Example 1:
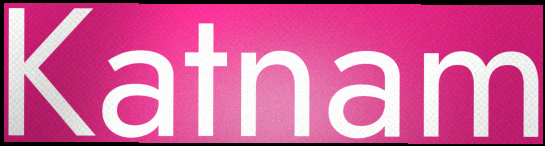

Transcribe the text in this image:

Katnam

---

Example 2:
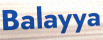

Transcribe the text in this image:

Balayya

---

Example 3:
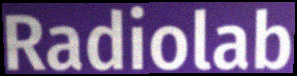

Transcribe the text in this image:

Radiolab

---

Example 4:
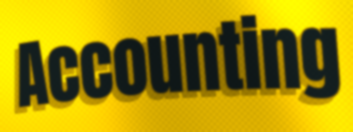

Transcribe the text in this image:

Accounting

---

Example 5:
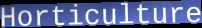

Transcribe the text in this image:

Horticulture